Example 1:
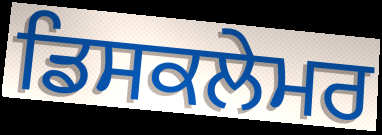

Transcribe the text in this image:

ਡਿਸਕਲੇਮਰ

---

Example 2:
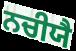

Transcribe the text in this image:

ਨਚੀਯੈ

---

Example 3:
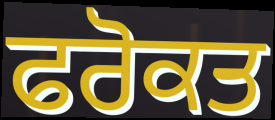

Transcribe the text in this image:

ਫਰੋਕਤ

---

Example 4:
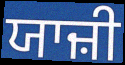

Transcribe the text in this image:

ਯਾਜ਼ੀ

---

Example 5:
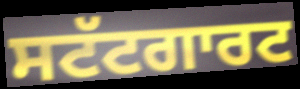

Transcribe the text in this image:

ਸਟੱਟਗਾਰਟ